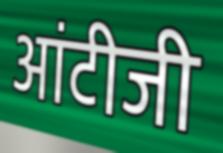
आंटीजी